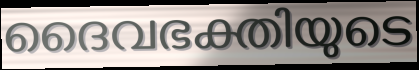
ദൈവഭക്തിയുടെ